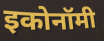
इकोनॉमी